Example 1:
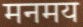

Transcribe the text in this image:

मनमय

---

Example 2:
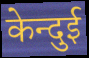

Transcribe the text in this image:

केन्दुई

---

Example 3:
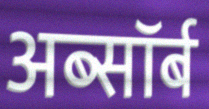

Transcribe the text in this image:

अब्सॉर्ब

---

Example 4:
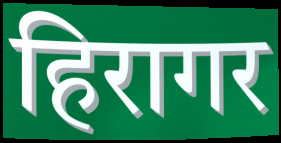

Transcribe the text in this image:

हिरागर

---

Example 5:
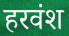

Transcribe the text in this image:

हरवंश